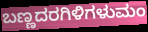
ಬಣ್ಣದರಗಿಳಿಗಳುಮಂ